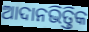
ଆଦାନଭିତ୍ତିକ